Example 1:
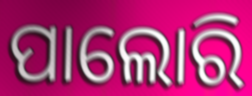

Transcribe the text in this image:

ପାଲୋରି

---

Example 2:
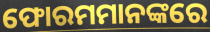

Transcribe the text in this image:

ଫୋରମମାନଙ୍କରେ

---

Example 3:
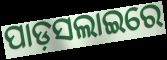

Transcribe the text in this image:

ପାଡ଼ସଲାଇରେ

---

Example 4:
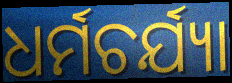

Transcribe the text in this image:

ଧର୍ମଚର୍ଯ୍ୟା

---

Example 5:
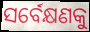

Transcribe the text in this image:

ସର୍ବେକ୍ଷଣକୁ